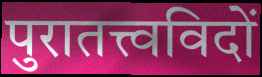
पुरातत्त्वविदों